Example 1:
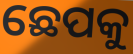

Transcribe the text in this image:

ଛେପକୁ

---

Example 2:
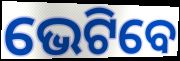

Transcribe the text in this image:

ଭେଟିବେ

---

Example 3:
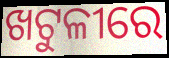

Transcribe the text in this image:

ଖଟୁଳୀରେ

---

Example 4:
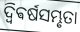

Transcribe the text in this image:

ଦ୍ଵିଵର୍ଷସମ୍ଭୃତା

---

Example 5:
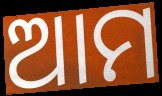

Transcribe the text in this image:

ଆମ